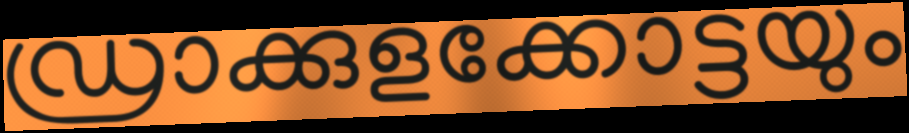
ഡ്രാക്കുളക്കോട്ടയും